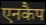
एनकैप